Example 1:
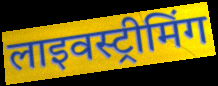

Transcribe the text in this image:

लाइवस्ट्रीमिंग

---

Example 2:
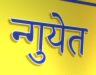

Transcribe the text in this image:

न्गुयेत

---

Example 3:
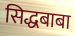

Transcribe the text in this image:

सिद्धबाबा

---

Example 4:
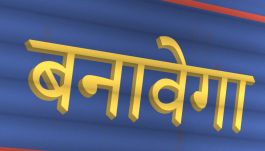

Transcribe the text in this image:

बनावेगा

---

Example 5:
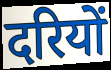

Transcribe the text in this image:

दरियों